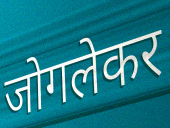
जोगलेकर